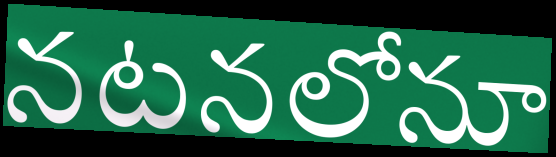
నటనలోనూ